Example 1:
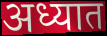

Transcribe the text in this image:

अध्यात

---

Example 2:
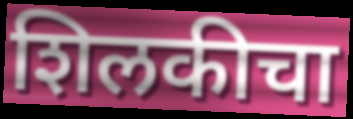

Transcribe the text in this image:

शिलकीचा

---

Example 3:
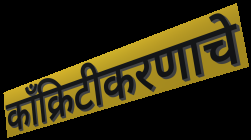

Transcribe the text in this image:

काँक्रिटीकरणाचे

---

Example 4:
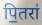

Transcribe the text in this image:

पि॒तरा॑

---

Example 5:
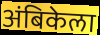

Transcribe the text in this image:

अंबिकेला